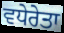
ਵਧੇਰੇਤਾ